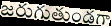
జరుగుతుండగా